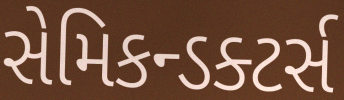
સેમિકન્ડક્ટર્સ